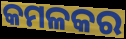
କମଳକର